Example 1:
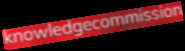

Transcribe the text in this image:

knowledgecommission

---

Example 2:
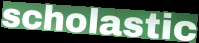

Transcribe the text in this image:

scholastic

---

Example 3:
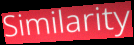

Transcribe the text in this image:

Similarity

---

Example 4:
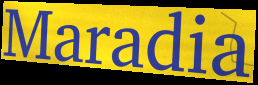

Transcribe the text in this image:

Maradia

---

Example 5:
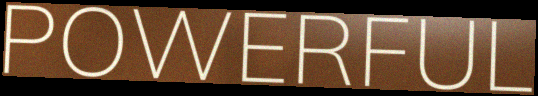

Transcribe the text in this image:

POWERFUL